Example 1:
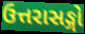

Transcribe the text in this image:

ઉત્તરાસઙ્ગો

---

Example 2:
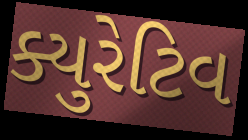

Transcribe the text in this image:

ક્યુરેટિવ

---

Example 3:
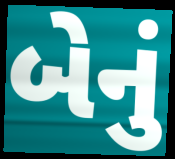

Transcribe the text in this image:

બેનું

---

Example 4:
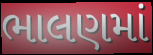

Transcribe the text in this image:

ભાલણમાં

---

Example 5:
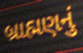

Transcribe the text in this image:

બ્રાહ્મણનું